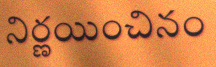
నిర్ణయించినం